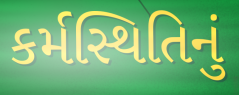
કર્મસ્થિતિનું